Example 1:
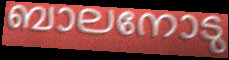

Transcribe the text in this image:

ബാലനോടു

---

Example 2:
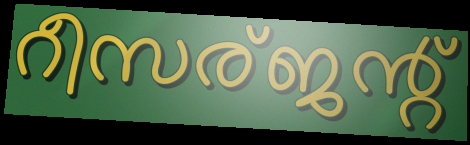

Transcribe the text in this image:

റീസര്ജന്റ്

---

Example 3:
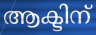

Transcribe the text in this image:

ആക്ടിന്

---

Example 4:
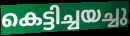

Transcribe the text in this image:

കെട്ടിച്ചയച്ചു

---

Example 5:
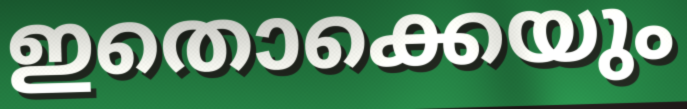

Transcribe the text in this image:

ഇതൊക്കെയും